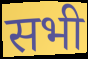
सभी